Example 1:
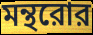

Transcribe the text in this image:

মন্থরোর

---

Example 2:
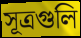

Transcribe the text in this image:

সূত্রগুলি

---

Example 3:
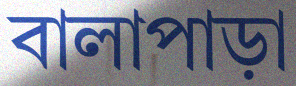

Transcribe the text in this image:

বালাপাড়া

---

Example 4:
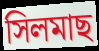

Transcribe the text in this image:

সিলমাছ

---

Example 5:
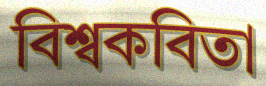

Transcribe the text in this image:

বিশ্বকবিতা